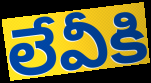
లేవీకి